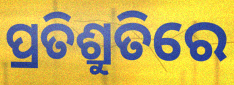
ପ୍ରତିଶ୍ରୁତିରେ